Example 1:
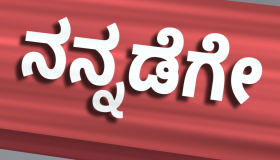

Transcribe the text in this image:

ನನ್ನಡೆಗೇ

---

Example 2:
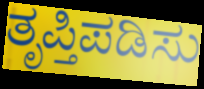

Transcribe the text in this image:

ತೃಪ್ತಿಪಡಿಸು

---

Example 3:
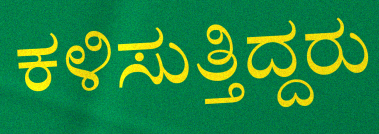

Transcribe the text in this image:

ಕಳಿಸುತ್ತಿದ್ದರು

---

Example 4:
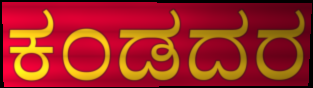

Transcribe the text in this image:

ಕಂಡದರ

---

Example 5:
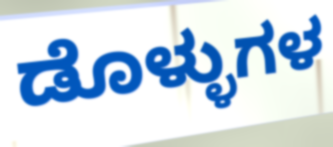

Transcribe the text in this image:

ಡೊಳ್ಳುಗಳ